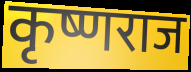
कृष्णराज